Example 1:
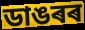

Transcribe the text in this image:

ডাঙৰৰ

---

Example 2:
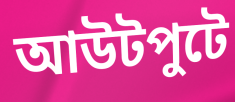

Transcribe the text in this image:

আউটপুটে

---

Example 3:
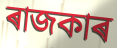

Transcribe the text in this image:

ৰাজকাৰ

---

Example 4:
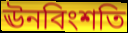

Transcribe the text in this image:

ঊনবিংশতি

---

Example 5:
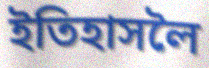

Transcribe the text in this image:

ইতিহাসলৈ